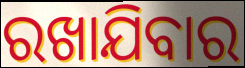
ରଖାଯିବାର